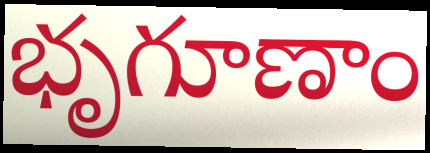
భృగూణాం